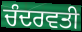
ਚੰਦਰਵਤੀ